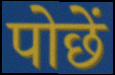
पोछें